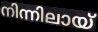
നിന്നിലായ്